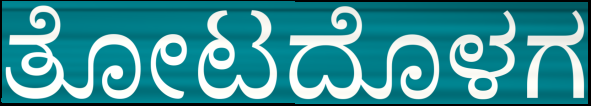
ತೋಟದೊಳಗ